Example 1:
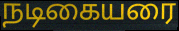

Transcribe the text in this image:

நடிகையரை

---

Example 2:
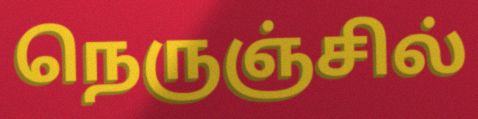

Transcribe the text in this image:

நெருஞ்சில்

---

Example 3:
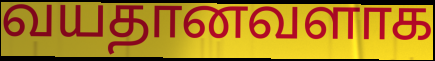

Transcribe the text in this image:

வயதானவளாக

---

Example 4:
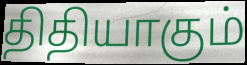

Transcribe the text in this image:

திதியாகும்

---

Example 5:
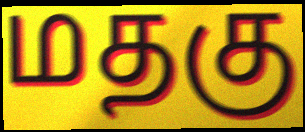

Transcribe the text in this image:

மதகு